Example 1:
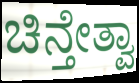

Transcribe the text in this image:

ಚಿನ್ತೇತ್ವಾ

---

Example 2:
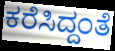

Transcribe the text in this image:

ಕರೆಸಿದ್ದಂತೆ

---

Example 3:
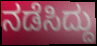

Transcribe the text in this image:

ನಡೆಸಿದ್ದು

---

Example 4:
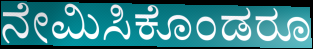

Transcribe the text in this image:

ನೇಮಿಸಿಕೊಂಡರೂ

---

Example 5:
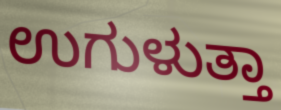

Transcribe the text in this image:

ಉಗುಳುತ್ತಾ